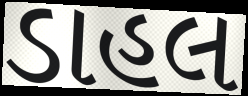
ડાહલ